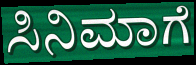
ಸಿನಿಮಾಗೆ